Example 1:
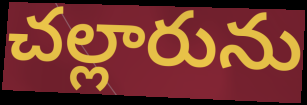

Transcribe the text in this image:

చల్లారును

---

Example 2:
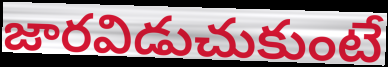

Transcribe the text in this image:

జారవిడుచుకుంటే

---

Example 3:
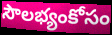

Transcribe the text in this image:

సౌలభ్యంకోసం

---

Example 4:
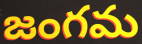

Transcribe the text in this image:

జంగమ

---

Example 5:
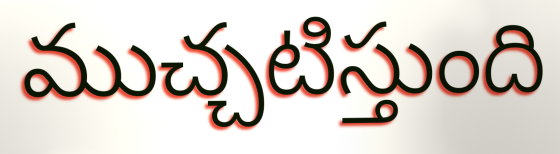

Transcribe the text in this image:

ముచ్చటిస్తుంది